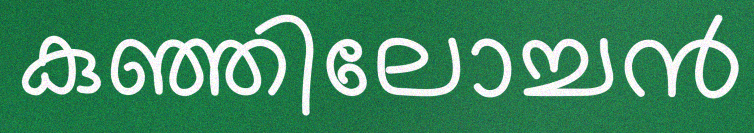
കുഞ്ഞിലോച്ചൻ